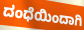
ದಂಧೆಯಿಂದಾಗಿ